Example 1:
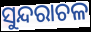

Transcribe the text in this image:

ସୁନ୍ଦରାଚଳ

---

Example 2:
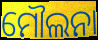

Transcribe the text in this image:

ମୌଲନା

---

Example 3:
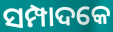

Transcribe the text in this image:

ସମ୍ପାଦକେ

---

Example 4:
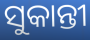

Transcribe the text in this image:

ସୁକାନ୍ତୀ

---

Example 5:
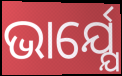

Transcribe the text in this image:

ଭାର୍ଯ୍ଯେ